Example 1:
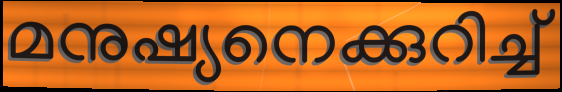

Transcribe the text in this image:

മനുഷ്യനെക്കുറിച്ച്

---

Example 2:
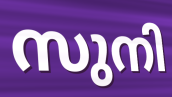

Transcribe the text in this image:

സുനി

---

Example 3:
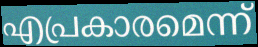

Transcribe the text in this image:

എപ്രകാരമെന്ന്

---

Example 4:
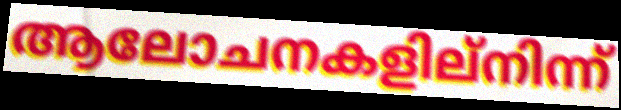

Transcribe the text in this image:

ആലോചനകളില്നിന്ന്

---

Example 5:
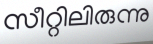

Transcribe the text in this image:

സീറ്റിലിരുന്നു